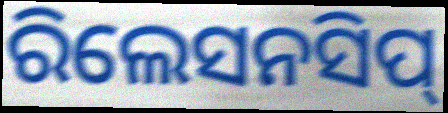
ରିଲେସନସିପ୍